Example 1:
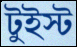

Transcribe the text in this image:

টুইস্ট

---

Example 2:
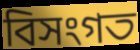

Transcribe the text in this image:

বিসংগত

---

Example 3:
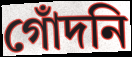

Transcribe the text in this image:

গোঁদনি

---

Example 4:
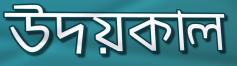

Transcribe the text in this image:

উদয়কাল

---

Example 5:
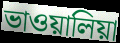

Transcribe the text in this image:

ভাওয়ালিয়া